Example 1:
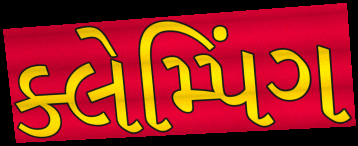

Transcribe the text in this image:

ક્લેમ્પિંગ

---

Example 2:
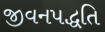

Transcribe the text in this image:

જીવનપદ્ધતિ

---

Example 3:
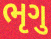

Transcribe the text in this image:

ભૃગુ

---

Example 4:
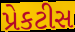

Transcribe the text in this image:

પ્રેકટીસ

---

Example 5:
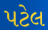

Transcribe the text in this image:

પટેલ